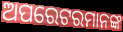
ଅପରେଟରମାନଙ୍କ